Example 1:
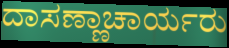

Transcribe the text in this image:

ದಾಸಣ್ಣಾಚಾರ್ಯರು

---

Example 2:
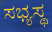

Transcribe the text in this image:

ಸಭ್ಯಸ್ಥ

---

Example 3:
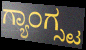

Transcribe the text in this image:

ಗ್ಯಾಂಗ್ಸ್ಟ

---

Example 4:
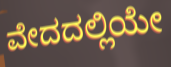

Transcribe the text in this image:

ವೇದದಲ್ಲಿಯೇ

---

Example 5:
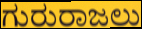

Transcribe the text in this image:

ಗುರುರಾಜಲು